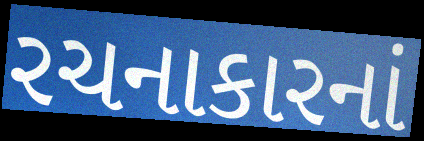
રચનાકારનાં